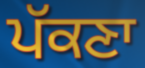
ਪੱਕਣਾ